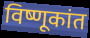
विष्णूकांत